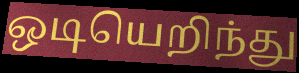
ஒடியெறிந்து